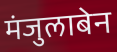
मंजुलाबेन